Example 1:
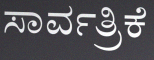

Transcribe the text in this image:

ಸಾರ್ವತ್ರಿಕೆ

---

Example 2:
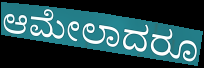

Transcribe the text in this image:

ಆಮೇಲಾದರೂ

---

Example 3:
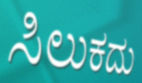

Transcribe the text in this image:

ಸಿಲುಕದು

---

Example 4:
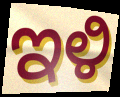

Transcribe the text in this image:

ಇಳಿ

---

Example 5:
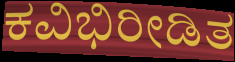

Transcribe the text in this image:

ಕವಿಭಿರೀಡಿತ